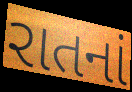
રાતનાં